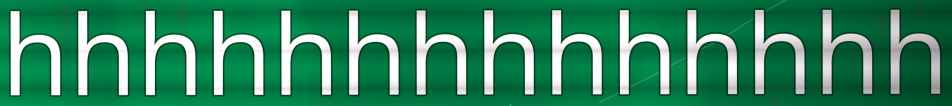
hhhhhhhhhhhhhh